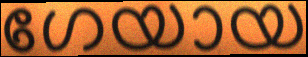
ഗേയായ